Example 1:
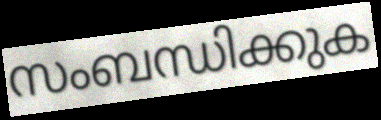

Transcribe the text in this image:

സംബന്ധിക്കുക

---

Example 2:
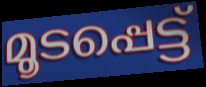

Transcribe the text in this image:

മൂടപ്പെട്ട്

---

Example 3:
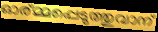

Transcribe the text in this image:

ഓര്മ്മപ്പെടുത്തുവാന്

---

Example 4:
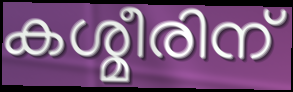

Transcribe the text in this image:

കശ്മീരിന്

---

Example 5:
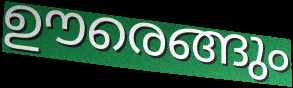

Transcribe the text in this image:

ഊരെങ്ങും